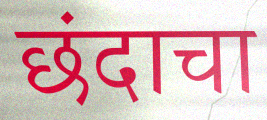
छंदाचा